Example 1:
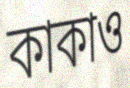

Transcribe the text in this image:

কাকাও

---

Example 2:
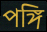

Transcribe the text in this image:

পঙ্গি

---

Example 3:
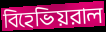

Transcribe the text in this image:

বিহেভিয়রাল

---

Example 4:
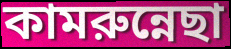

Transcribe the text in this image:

কামরুন্নেছা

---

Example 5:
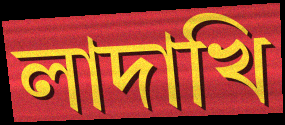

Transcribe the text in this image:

লাদাখি